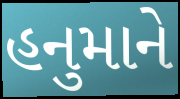
હનુમાને